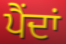
ਪੈਂਦਾਂ